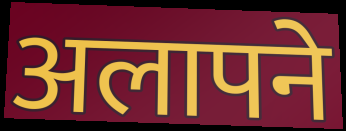
अलापने